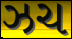
ઝચ